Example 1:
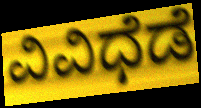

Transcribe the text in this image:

ವಿವಿಧೆಡೆ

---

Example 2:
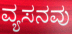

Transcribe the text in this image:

ವ್ಯಸನವು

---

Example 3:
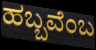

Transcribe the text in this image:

ಹಬ್ಬವೆಂಬ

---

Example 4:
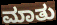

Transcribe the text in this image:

ಮಾತು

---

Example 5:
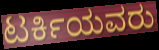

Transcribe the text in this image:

ಟರ್ಕಿಯವರು